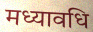
मध्‍यावधि